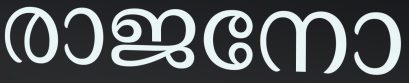
രാജനോ